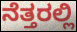
ನೆತ್ತರಲ್ಲಿ